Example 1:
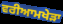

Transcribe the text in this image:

ਵਰੀਆਮਖੇੜਾ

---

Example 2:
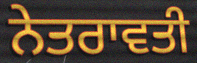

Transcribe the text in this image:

ਨੇਤਰਾਵਤੀ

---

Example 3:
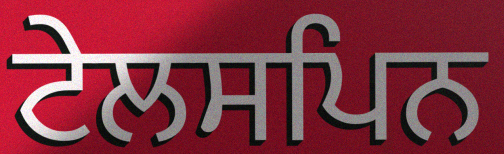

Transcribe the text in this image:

ਟੇਲਸਪਿਨ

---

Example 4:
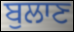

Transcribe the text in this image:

ਬੁਲਾਣ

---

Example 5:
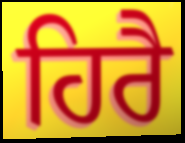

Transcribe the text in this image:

ਹਿਰੈ